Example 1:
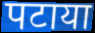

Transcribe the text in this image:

पटाया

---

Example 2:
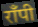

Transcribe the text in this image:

राँपी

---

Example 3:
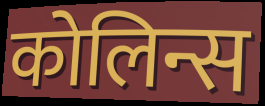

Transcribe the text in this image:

कोलिन्स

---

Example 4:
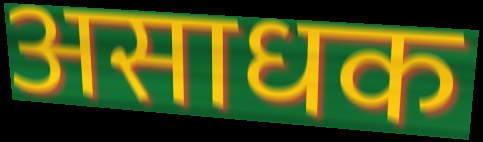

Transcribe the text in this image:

असाधक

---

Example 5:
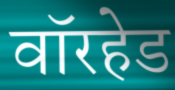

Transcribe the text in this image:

वॉरहेड